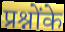
प्रश्नोंके